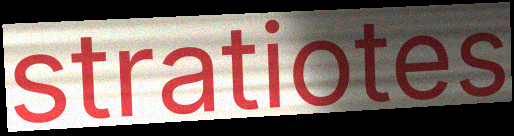
stratiotes